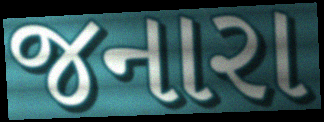
જનારા